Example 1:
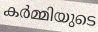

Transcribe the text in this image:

കർമ്മിയുടെ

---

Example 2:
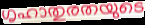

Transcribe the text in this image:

ഗൃഹാതുരതയുടെ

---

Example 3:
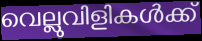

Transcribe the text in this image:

വെല്ലുവിളികൾക്ക്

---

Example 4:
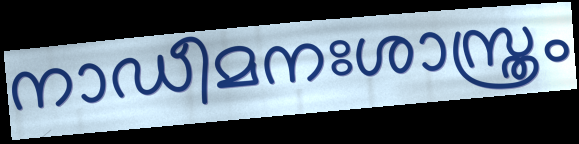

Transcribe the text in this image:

നാഡീമനഃശാസ്ത്രം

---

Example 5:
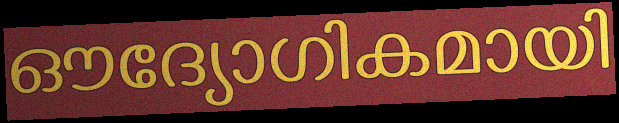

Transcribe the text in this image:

ഔദ്യോഗികമായി